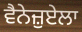
ਵੈਨੇਜ਼ੁਏਲਾ